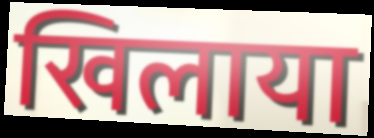
खिलाया